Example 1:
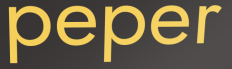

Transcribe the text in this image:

peper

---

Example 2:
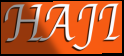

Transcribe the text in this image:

HAJI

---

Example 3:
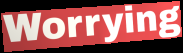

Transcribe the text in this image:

Worrying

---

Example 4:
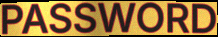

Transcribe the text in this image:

PASSWORD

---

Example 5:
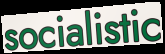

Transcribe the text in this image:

socialistic